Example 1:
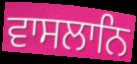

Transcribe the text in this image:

ਵਾਸਲਾਨਿ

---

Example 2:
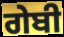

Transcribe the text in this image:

ਗੇਬੀ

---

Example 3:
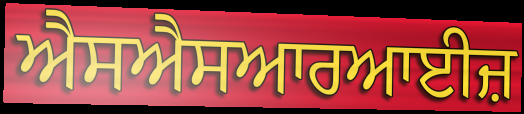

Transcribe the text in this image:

ਐਸਐਸਆਰਆਈਜ਼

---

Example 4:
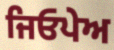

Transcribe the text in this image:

ਜਿਓਪੇਅ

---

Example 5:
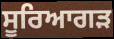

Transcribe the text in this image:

ਸੂਰਿਆਗੜ